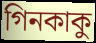
গিনকাকু